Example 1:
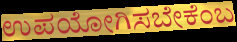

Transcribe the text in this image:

ಉಪಯೋಗಿಸಬೇಕೆಂಬ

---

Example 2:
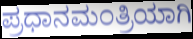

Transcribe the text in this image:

ಪ್ರಧಾನಮಂತ್ರಿಯಾಗಿ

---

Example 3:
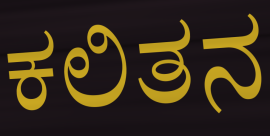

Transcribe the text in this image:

ಕಲಿತನ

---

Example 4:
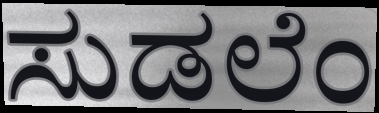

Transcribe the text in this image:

ಸುಡಲೆಂ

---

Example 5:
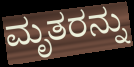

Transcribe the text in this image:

ಮೃತರನ್ನು